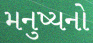
મનુષ્યનો